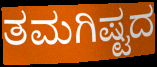
ತಮಗಿಷ್ಟದ